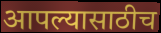
आपल्यासाठीच